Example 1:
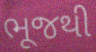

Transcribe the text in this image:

ભૂજથી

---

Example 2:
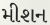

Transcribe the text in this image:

મીશન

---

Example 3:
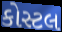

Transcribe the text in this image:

કોસ્ટલ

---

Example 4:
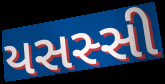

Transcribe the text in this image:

યસસ્સી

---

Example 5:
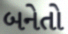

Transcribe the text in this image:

બનેતો